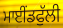
ਮਾਈਂਡਫੁੱਲੀ